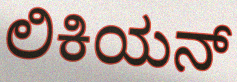
ಲಿಕಿಯನ್